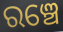
ରଞ୍ଚେ